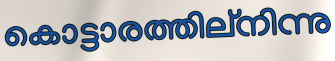
കൊട്ടാരത്തില്നിന്നു